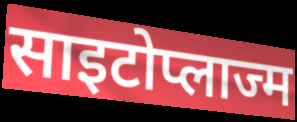
साइटोप्लाज्म